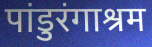
पांडुरंगाश्रम